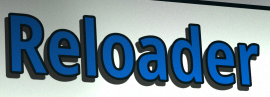
Reloader